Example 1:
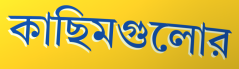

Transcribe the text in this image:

কাছিমগুলোর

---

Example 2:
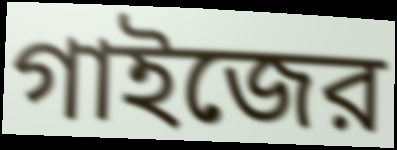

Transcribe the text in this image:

গাইজের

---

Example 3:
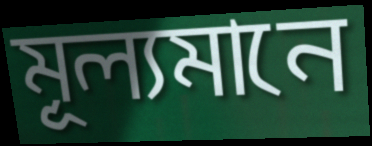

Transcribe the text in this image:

মূল্যমানে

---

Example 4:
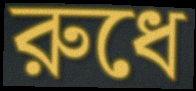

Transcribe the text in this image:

রুধে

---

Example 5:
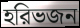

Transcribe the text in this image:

হরিভজন